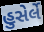
હુસેર્લે